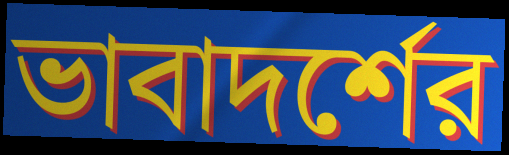
ভাবাদর্শের